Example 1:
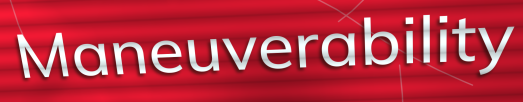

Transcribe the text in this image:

Maneuverability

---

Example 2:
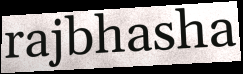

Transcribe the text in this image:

rajbhasha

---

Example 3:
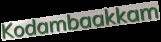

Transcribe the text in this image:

Kodambaakkam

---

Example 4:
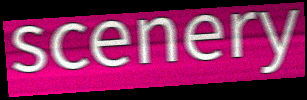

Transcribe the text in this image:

scenery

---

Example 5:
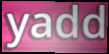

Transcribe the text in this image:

yadd